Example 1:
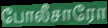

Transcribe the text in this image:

போலீசாரோ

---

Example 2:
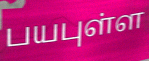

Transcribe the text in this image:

பயபுள்ள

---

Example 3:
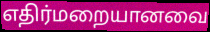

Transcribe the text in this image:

எதிர்மறையானவை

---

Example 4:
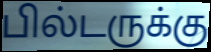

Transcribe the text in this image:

பில்டருக்கு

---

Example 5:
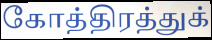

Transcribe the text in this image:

கோத்திரத்துக்